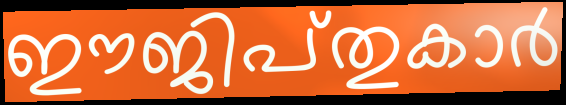
ഈജിപ്‌തുകാർ